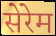
सेरेम